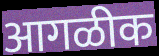
आगळीक